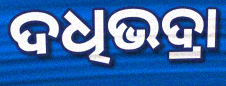
ଦଧିଭଦ୍ରା